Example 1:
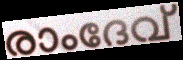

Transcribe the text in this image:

രാംദേവ്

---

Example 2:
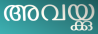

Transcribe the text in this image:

അവയ്ക്കു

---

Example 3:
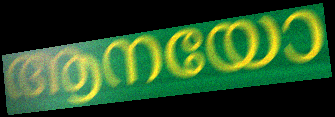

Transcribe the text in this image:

ആനയോ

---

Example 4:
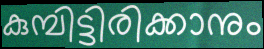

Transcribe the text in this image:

കുമ്പിട്ടിരിക്കാനും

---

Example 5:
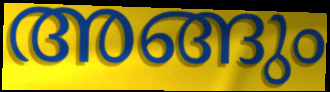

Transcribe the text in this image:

അങ്ങും